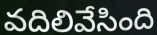
వదిలివేసింది